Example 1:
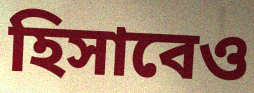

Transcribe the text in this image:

হিসাবেও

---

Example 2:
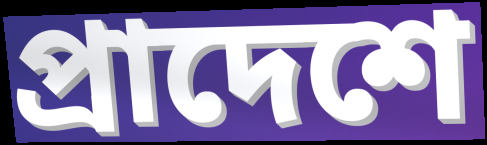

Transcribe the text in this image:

প্রাদেশে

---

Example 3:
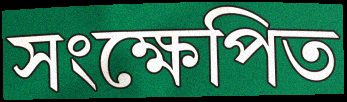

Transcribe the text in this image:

সংক্ষেপিত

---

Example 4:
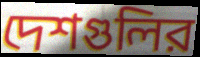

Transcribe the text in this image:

দেশগুলির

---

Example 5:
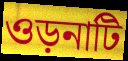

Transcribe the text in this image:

ওড়নাটি